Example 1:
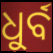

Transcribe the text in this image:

ଧୁର୍ବ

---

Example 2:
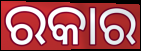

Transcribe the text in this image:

ରକାର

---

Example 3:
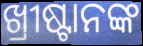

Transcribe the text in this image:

ଖ୍ରୀଷ୍ଟାନଙ୍କ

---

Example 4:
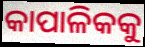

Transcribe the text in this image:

କାପାଳିକକୁ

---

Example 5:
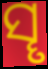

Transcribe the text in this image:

ସୄ